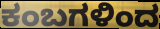
ಕಂಬಗಳಿಂದ